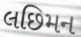
લછિમન